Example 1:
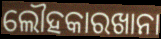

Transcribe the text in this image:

ଲୌହକାରଖାନା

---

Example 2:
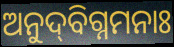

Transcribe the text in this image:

ଅନୁଦ୍‌ବିଗ୍ନମନାଃ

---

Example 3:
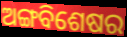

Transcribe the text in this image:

ଅଙ୍ଗବିଶେଷର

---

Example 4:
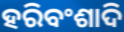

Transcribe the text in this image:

ହରିବଂଶାଦି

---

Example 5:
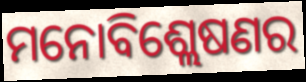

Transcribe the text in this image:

ମନୋବିଶ୍ଲେଷଣର